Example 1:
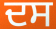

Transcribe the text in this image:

ਦਸ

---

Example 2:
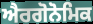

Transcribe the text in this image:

ਐਰਗੋਨੋਮਿਕ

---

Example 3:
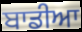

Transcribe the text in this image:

ਬਾਡੀਆ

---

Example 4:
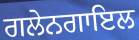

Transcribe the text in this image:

ਗਲੇਨਗਾਇਲ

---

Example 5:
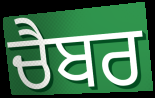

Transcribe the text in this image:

ਚੈਬਰ